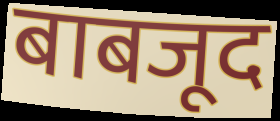
बाबजूद